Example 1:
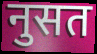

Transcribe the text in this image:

नुसत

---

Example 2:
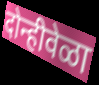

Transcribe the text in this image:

दोन्हीवेळा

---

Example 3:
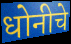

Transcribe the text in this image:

धोनीचे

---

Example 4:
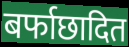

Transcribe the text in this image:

बर्फाछादित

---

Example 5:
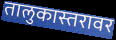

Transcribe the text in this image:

तालुकास्तरावर